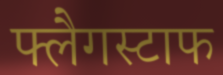
फ्लैगस्टाफ